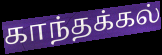
காந்தக்கல்